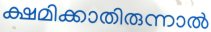
ക്ഷമിക്കാതിരുന്നാൽ